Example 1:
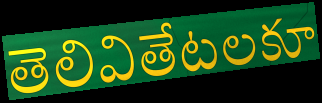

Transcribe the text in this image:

తెలివితేటలకూ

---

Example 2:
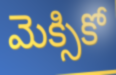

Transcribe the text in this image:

మెక్సికో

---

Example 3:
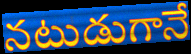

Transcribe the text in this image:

నటుడుగానే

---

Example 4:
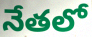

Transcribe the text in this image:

నేతలో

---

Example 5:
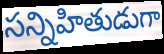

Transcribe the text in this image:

సన్నిహితుడుగా